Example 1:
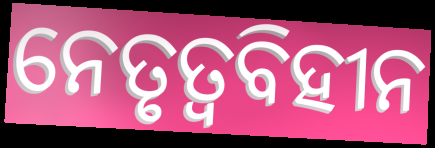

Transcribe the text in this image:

ନେତୃତ୍ୱବିହୀନ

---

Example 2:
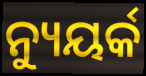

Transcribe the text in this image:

ନ୍ୟୁୟର୍କ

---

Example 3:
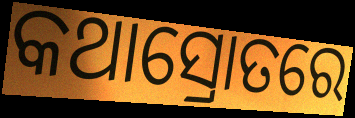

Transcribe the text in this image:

କଥାସ୍ରୋତରେ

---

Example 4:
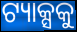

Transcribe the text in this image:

ଟ୍ୟାକ୍ସକୁ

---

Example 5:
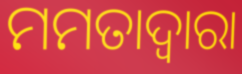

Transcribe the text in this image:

ମମତାଦ୍ୱାରା